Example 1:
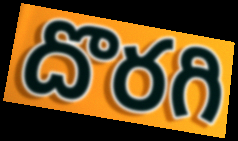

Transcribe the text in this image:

దొరగి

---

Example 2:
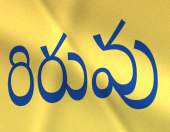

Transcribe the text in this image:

రిరువు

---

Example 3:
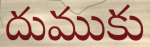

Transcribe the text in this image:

దుముకు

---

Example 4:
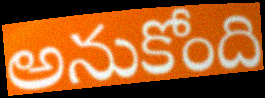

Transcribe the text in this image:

అనుకోంది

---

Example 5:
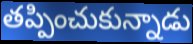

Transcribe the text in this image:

తప్పించుకున్నాడు